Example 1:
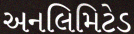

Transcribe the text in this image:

અનલિમિટેડ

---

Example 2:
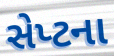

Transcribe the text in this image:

સેપ્ટના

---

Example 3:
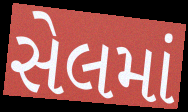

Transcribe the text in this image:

સેલમાં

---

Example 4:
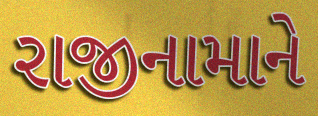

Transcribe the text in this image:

રાજીનામાને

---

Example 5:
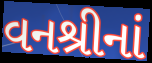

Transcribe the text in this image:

વનશ્રીનાં